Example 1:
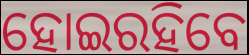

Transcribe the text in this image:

ହୋଇରହିବେ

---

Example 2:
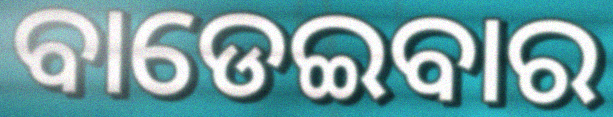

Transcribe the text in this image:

ବାଡେଇବାର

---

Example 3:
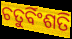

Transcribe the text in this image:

ଚତୁର୍ବିଂଶତି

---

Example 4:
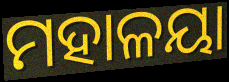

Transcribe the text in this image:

ମହାଳୟା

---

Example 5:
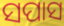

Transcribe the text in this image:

ସପାସ